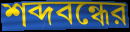
শব্দবন্ধের